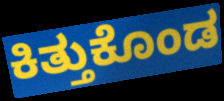
ಕಿತ್ತುಕೊಂಡ